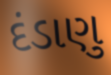
દંડાણુ